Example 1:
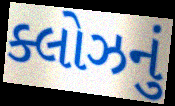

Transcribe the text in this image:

ક્લોઝનું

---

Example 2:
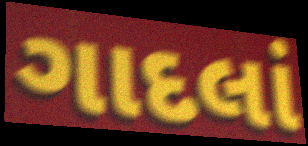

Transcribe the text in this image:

ગાદલાં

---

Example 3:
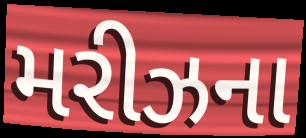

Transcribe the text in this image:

મરીઝના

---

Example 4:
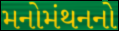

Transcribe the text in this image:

મનોમંથનનો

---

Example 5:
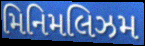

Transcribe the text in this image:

મિનિમલિઝમ